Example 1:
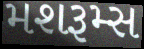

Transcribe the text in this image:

મશરૂમ્સ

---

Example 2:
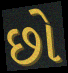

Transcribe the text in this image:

છો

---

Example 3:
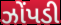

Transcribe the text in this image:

ઝોંપડી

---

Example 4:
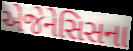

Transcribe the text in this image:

એજેનેસિસના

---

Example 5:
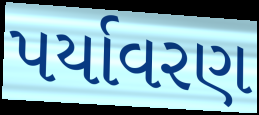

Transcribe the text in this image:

પર્યાવરણ